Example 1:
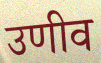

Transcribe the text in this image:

उणीव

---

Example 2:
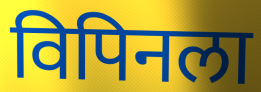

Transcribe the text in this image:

विपिनला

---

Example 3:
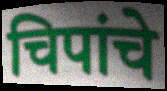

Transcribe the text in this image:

चिपांचे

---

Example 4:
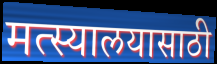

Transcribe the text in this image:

मत्स्यालयासाठी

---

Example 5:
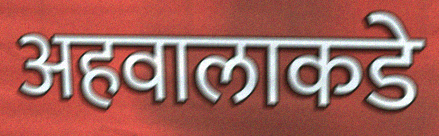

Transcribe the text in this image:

अहवालाकडे